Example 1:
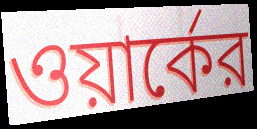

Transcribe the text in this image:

ওয়ার্কের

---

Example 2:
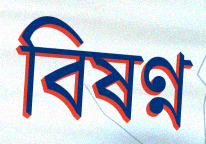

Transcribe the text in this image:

বিষণ্ন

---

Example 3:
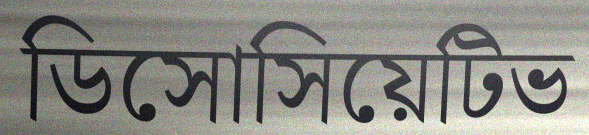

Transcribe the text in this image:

ডিসোসিয়েটিভ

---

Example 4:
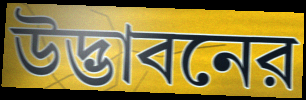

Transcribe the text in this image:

উদ্ভাবনের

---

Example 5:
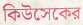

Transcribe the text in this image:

কিউসেকের